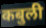
कबुली